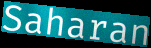
Saharan